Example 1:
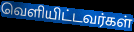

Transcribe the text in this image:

வெளியிட்டவர்கள்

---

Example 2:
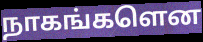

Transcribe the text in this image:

நாகங்களென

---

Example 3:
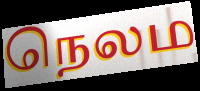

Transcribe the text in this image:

நெலம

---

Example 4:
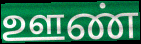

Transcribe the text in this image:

ஊண்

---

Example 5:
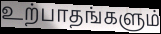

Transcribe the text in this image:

உற்பாதங்களும்